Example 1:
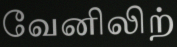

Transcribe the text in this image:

வேனிலிற்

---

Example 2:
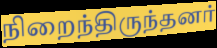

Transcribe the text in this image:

நிறைந்திருந்தனர்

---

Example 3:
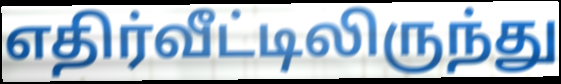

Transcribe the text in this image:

எதிர்வீட்டிலிருந்து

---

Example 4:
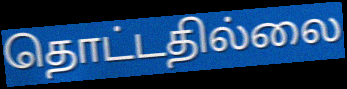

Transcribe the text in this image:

தொட்டதில்லை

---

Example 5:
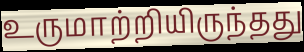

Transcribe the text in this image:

உருமாற்றியிருந்தது